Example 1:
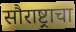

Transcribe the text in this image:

सौराष्ट्राचा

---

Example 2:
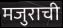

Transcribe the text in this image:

मजुराची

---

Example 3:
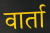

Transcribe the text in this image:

वार्ता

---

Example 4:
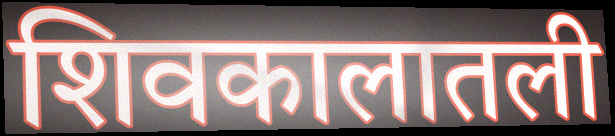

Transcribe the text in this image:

शिवकालातली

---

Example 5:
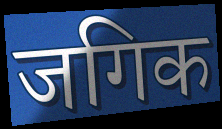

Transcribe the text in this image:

जगिक